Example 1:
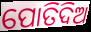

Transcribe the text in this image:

ପୋତିଦିଅ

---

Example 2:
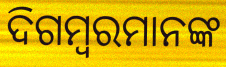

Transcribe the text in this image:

ଦିଗମ୍ବରମାନଙ୍କ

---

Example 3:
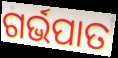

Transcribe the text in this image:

ଗର୍ଭପାତ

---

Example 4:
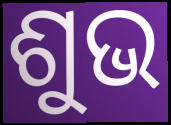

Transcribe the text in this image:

ଶୁଭ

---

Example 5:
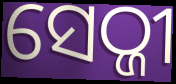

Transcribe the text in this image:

ସେଠ୍ଜୀ